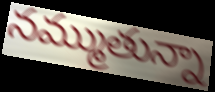
నమ్ముతున్నా